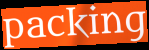
packing